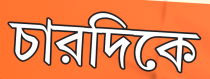
চারদিকে